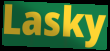
Lasky